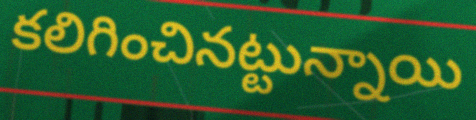
కలిగించినట్టున్నాయి